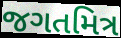
જગતમિત્ર